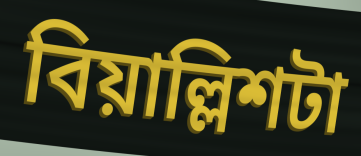
বিয়াল্লিশটা